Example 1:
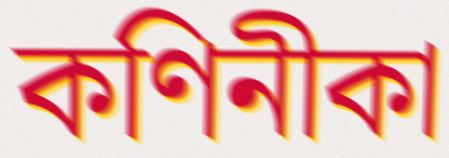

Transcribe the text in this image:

কণিনীকা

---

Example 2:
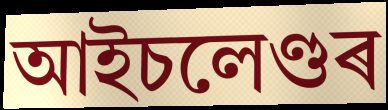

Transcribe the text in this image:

আইচলেণ্ডৰ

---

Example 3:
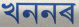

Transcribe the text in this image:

খননৰ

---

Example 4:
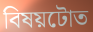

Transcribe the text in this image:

বিষয়টোত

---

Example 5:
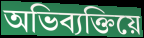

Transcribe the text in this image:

অভিব্যক্তিয়ে